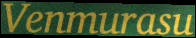
Venmurasu